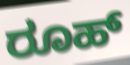
ರೂಹ್